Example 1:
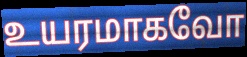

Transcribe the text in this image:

உயரமாகவோ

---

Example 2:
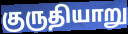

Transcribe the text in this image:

குருதியாறு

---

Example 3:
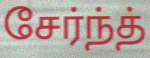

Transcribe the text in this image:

சேர்ந்த்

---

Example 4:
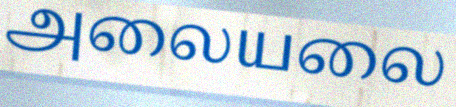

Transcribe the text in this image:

அலையலை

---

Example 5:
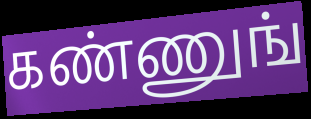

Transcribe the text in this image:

கண்ணுங்